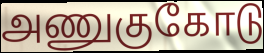
அணுகுகோடு